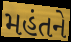
મહંતને